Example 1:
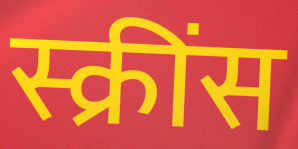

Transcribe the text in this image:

स्क्रींस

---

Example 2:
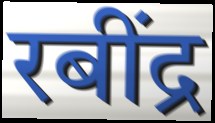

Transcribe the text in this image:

रबींद्र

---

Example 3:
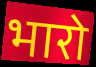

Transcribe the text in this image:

भारो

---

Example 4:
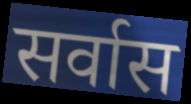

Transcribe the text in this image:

सर्वास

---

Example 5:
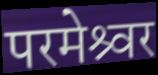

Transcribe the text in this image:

परमेश्र्वर